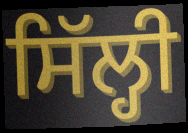
ਸਿੱਲ੍ਹੀ